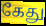
கேது